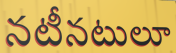
నటీనటులూ